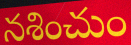
నశించుం